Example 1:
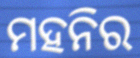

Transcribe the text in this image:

ମହନିର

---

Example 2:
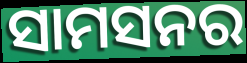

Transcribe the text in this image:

ସାମସନର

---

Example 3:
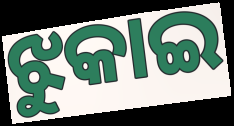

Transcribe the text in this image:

ଝୁକାଇ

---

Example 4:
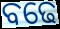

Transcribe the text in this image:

ବଢେ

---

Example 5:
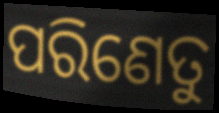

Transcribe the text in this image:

ପରିଣେତୁ